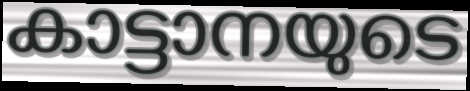
കാട്ടാനയുടെ